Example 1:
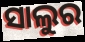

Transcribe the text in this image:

ସାଲୁର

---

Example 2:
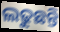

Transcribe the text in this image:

ଲଢୁଛନ୍ତି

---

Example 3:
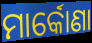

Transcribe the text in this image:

ମାର୍କୋଣା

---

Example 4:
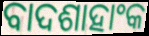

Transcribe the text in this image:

ବାଦଶାହାଂକ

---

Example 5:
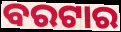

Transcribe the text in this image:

ବରଟାର